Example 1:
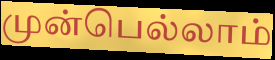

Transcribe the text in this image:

முன்பெல்லாம்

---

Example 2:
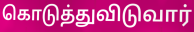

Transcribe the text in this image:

கொடுத்துவிடுவார்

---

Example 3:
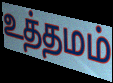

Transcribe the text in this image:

உத்தமம்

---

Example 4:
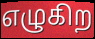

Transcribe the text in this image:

எழுகிற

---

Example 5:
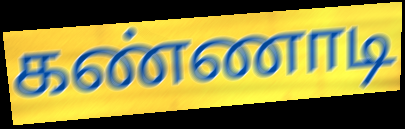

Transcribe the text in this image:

கண்ணாடி